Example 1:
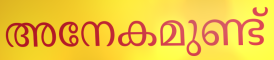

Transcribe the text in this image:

അനേകമുണ്ട്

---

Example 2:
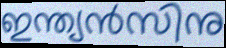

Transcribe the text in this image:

ഇന്ത്യൻസിനു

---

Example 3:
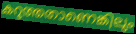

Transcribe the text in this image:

കറുത്തതാണെങ്കിലും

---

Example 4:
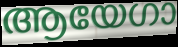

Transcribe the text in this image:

ആയേഗാ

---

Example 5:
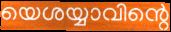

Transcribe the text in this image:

യെശയ്യാവിന്റെ